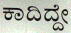
ಕಾದಿದ್ದೇ